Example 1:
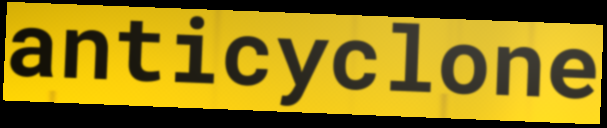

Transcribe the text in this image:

anticyclone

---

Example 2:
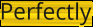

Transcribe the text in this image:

Perfectly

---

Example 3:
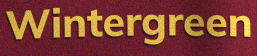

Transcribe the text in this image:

Wintergreen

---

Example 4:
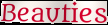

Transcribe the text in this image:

Beauties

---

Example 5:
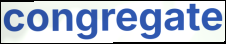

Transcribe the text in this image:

congregate